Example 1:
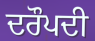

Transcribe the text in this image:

ਦਰੌਪਦੀ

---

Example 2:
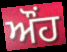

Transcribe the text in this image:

ਔਂਹ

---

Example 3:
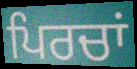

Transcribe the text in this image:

ਪਿਰਚਾਂ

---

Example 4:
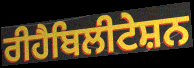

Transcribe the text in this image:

ਰੀਹੈਬਿਲੀਟੇਸ਼ਨ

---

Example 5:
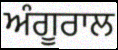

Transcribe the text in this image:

ਅੰਗੂਰਾਲ